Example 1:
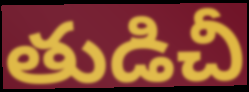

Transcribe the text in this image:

తుడిచీ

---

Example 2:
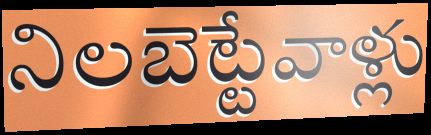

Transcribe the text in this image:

నిలబెట్టేవాళ్లు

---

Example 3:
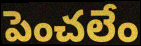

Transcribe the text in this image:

పెంచలేం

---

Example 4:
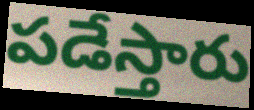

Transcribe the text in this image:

పడేస్తారు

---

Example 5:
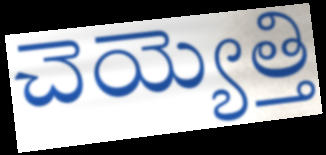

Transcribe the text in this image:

చెయ్యెత్తి